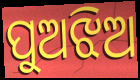
ପୁଅଝିଅ